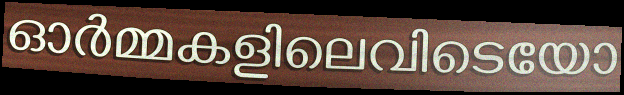
ഓർമ്മകളിലെവിടെയോ